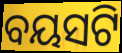
ବୟସଟି